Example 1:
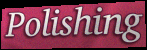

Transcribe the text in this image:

Polishing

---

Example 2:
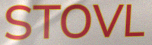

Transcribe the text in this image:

STOVL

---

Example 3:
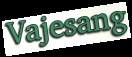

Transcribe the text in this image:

Vajesang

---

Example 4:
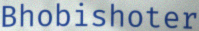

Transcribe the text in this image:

Bhobishoter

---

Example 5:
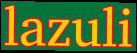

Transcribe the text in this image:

lazuli